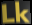
Lk